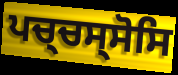
ਪਚ੍ਚਸ੍ਸੋਸਿ